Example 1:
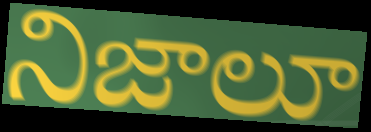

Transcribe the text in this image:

నిజాలూ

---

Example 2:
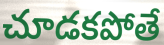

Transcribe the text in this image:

చూడకపోతే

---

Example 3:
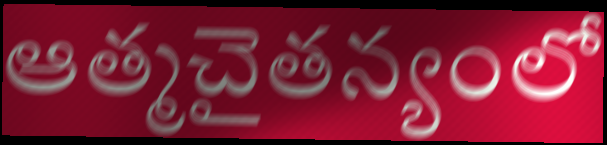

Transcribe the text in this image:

ఆత్మచైతన్యంలో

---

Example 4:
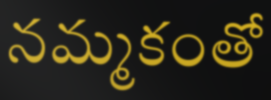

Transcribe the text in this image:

నమ్మకంతో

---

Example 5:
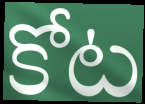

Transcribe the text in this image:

కోట